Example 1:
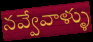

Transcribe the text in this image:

నవ్వేవాళ్ళు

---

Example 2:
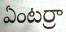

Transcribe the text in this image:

ఏంటర్రా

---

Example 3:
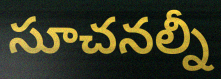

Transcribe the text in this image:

సూచనల్నీ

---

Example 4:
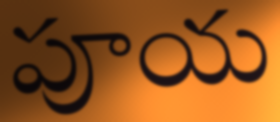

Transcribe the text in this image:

పూయ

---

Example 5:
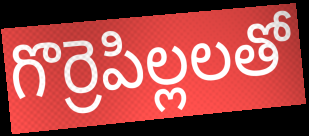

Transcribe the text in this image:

గొర్రెపిల్లలతో